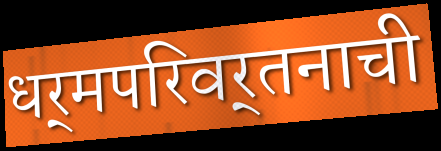
धर्मपरिवर्तनाची